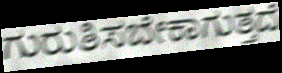
ಗುರುತಿಸಬೇಕಾಗುತ್ತದೆ